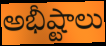
అభీష్టాలు